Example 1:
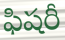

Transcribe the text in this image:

ఫిషరీ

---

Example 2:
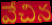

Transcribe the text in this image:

వేచిన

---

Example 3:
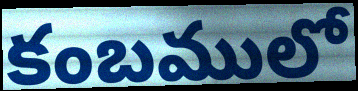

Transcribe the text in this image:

కంబములో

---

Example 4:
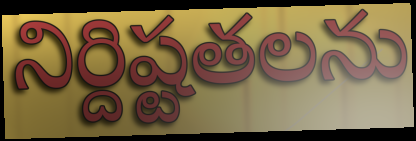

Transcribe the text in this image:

నిర్దిష్టతలను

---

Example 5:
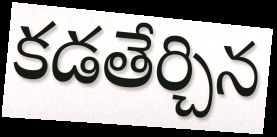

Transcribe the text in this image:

కడతేర్చిన